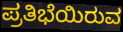
ಪ್ರತಿಭೆಯಿರುವ